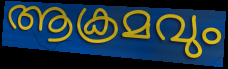
ആക്രമവും